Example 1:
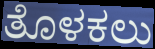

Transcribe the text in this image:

ತೊಳಕಲು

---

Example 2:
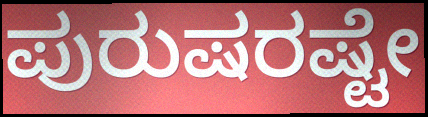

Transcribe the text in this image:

ಪುರುಷರಷ್ಟೇ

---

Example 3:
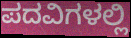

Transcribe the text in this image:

ಪದವಿಗಳಲ್ಲಿ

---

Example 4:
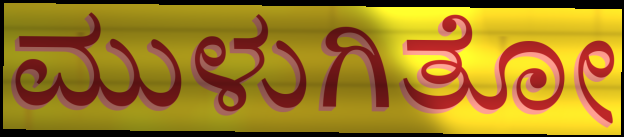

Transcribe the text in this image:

ಮುಳುಗಿತೋ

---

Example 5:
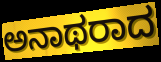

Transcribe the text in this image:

ಅನಾಥರಾದ